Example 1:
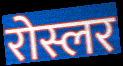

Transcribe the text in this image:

रोस्लर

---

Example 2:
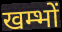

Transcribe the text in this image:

खम्भों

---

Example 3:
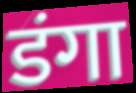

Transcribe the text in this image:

डंगा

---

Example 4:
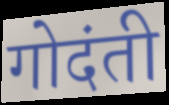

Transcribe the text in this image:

गोदंती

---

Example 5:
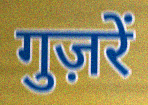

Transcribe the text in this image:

गुज़रें